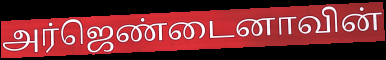
அர்ஜெண்டைனாவின்